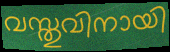
വസ്തുവിനായി